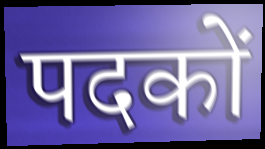
पदकों